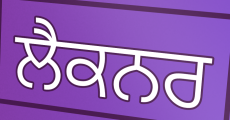
ਲੈਕਨਰ